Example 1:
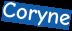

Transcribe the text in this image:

Coryne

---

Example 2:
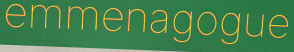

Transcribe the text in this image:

emmenagogue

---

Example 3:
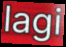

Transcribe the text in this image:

lagi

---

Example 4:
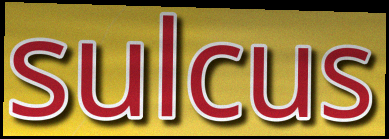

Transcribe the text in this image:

sulcus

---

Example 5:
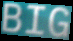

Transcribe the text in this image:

BIG